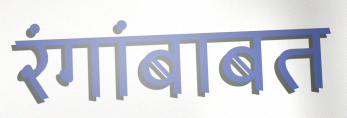
रंगांबाबत